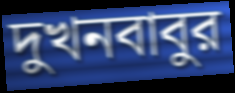
দুখনবাবুর